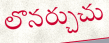
లొనర్చుచు